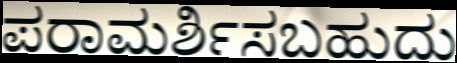
ಪರಾಮರ್ಶಿಸಬಹುದು